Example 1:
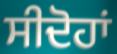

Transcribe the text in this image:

ਸੀਦੋਹਾਂ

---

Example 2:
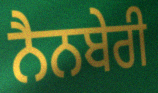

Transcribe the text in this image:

ਨੈਨਬੇਰੀ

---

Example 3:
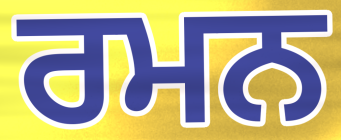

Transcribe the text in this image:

ਰਮਨ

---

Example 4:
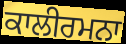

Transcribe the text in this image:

ਕਾਲੀਰਮਨਾ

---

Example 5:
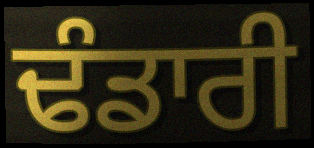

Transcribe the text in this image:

ਢੰਡਾਰੀ